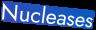
Nucleases